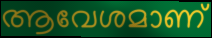
ആവേശമാണ്